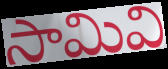
సామివి